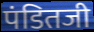
पंडितजी